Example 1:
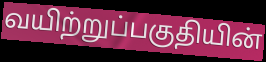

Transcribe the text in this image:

வயிற்றுப்பகுதியின்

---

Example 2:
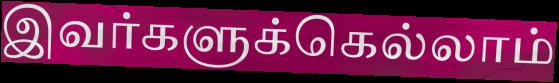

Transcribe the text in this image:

இவர்களுக்கெல்லாம்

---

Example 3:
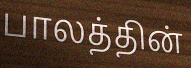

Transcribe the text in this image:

பாலத்தின்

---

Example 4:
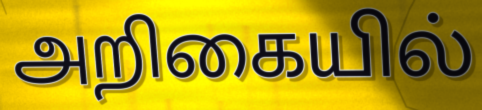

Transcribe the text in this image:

அறிகையில்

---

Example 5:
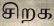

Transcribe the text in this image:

சிறக